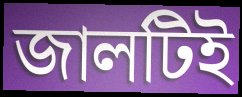
জালটিই